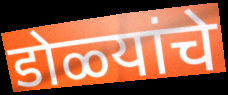
डोळ्यांचे